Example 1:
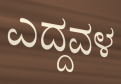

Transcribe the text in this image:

ಎದ್ದವಳ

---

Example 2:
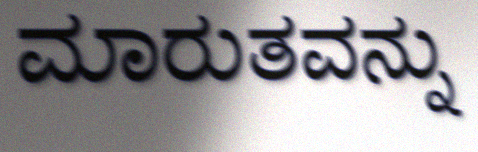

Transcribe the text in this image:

ಮಾರುತವನ್ನು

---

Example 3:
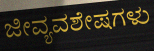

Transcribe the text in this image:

ಜೀವ್ಯವಶೇಷಗಳು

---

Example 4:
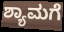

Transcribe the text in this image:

ಶ್ಯಾಮಗೆ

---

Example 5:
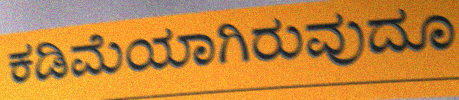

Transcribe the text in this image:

ಕಡಿಮೆಯಾಗಿರುವುದೂ